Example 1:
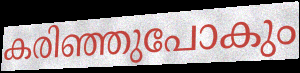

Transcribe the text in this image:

കരിഞ്ഞുപോകും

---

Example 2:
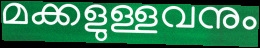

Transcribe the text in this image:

മക്കളുള്ളവനും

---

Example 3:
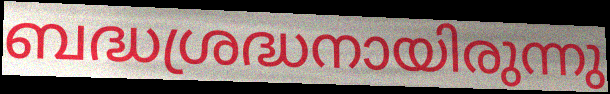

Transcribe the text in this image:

ബദ്ധശ്രദ്ധനായിരുന്നു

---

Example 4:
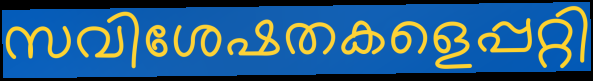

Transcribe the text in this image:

സവിശേഷതകളെപ്പറ്റി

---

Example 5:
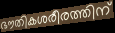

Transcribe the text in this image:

ഭൗതികശരീരത്തിന്